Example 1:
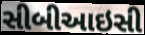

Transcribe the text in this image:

સીબીઆઇસી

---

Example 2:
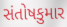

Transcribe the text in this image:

સંતોષકુમાર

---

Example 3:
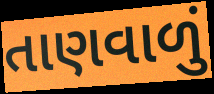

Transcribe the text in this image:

તાણવાળું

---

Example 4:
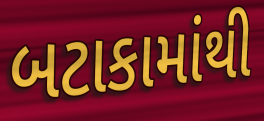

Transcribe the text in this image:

બટાકામાંથી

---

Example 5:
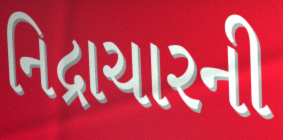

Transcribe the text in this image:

નિદ્રાચારની